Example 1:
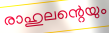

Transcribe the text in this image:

രാഹുലന്റെയും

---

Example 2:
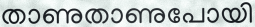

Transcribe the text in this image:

താണുതാണുപോയി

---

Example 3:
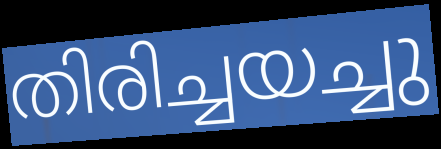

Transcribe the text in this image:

തിരിച്ചയച്ചു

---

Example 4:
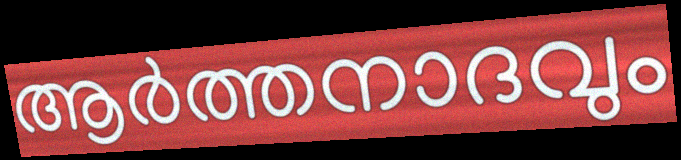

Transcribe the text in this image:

ആർത്തനാദവും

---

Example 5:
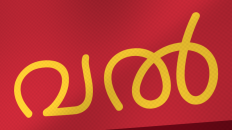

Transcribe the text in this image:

വൽ